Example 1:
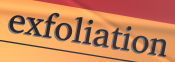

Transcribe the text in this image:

exfoliation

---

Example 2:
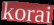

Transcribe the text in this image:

korai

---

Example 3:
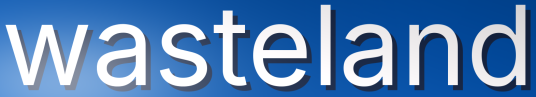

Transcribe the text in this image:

wasteland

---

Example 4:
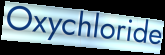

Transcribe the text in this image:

Oxychloride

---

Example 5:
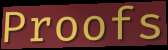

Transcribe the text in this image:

Proofs